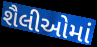
શૈલીઓમાં